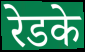
रेडके